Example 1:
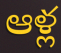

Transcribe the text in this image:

ఆళ్ల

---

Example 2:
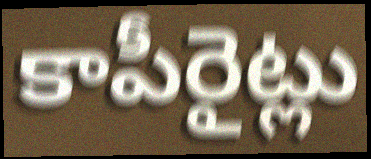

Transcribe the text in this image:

కాపీరైట్లు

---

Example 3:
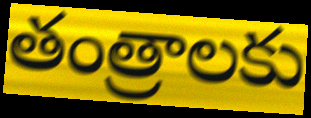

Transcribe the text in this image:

తంత్రాలకు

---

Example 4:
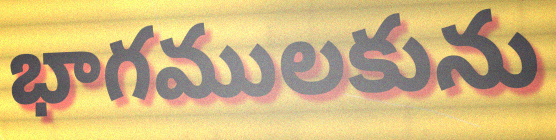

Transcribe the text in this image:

భాగములకును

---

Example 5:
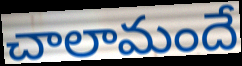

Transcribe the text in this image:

చాలామందే